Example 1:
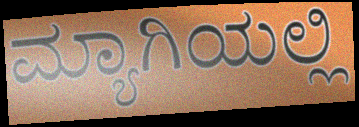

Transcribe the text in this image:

ಮ್ಯಾಗಿಯಲ್ಲಿ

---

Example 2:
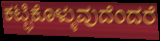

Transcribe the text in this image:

ಕಟ್ಟಿಕೊಳ್ಳುವುದೆಂದರೆ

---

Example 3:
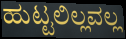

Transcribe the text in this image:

ಹುಟ್ಟಲಿಲ್ಲವಲ್ಲ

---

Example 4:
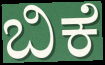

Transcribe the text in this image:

ಬಿಕೆ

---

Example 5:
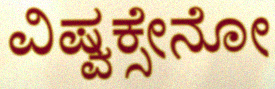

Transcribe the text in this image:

ವಿಷ್ವಕ್ಸೇನೋ